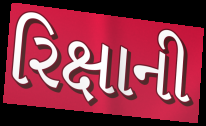
રિક્ષાની